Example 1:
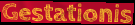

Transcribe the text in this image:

Gestationis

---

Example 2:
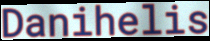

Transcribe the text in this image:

Danihelis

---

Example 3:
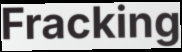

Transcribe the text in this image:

Fracking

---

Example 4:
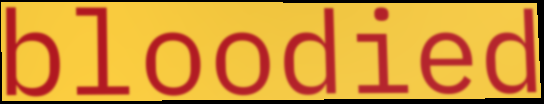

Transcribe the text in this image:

bloodied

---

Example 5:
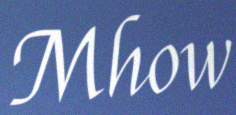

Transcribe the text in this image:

Mhow